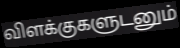
விளக்குகளுடனும்